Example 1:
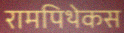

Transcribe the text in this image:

रामपिथेकस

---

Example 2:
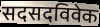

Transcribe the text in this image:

सदसदविवेक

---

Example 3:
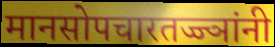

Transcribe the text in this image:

मानसोपचारतज्ज्ञांनी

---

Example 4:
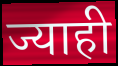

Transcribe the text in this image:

ज्याही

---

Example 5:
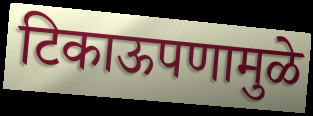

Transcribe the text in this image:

टिकाऊपणामुळे